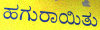
ಹಗುರಾಯಿತು